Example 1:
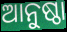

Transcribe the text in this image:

ଆନୁଷ୍ଠା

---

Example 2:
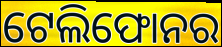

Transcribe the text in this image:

ଟେଲିଫୋନର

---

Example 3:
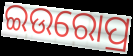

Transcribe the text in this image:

ଇଉରୋପ୍ର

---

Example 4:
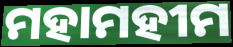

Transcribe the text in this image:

ମହାମହୀମ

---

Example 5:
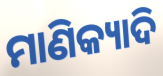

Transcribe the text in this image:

ମାଣିକ୍ୟାଦି